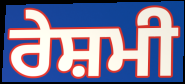
ਰੇਸ਼ਮੀ